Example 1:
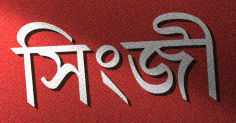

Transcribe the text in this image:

সিংজী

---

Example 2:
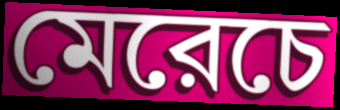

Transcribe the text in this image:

মেরেচে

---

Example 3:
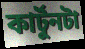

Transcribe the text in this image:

কার্টুনটা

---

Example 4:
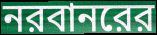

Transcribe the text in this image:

নরবানরের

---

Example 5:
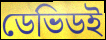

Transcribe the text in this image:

ডেভিডই